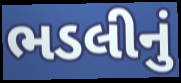
ભડલીનું